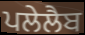
ਪਲੇਲੈਬ